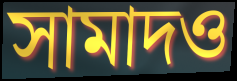
সামাদও